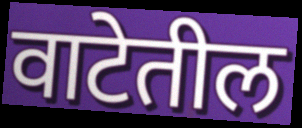
वाटेतील